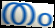
തം